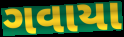
ગવાયા